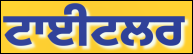
ਟਾਈਟਲਰ